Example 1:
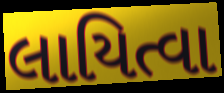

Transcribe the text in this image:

લાયિત્વા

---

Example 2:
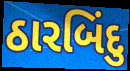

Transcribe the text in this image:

ઠારબિંદુ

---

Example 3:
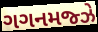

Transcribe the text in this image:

ગગનમજ્ઝે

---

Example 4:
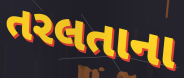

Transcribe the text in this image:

તરલતાના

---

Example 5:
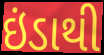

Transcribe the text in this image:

ઇંડાથી